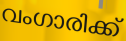
വംഗാരിക്ക്